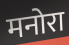
मनोरा